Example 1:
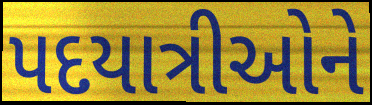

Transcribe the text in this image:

પદયાત્રીઓને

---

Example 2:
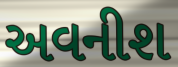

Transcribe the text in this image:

અવનીશ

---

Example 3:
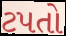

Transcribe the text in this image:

ટપતો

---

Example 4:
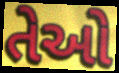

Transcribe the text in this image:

તેઓે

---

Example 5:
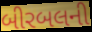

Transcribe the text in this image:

બીરબલની